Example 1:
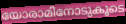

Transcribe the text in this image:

യോരാമിനോടുകൂടെ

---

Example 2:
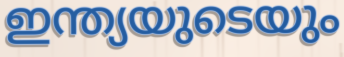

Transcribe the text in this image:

ഇന്ത്യയുടെയും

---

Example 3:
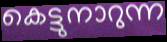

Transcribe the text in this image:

കെട്ടുനാറുന്ന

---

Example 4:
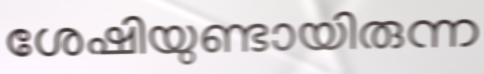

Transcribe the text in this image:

ശേഷിയുണ്ടായിരുന്ന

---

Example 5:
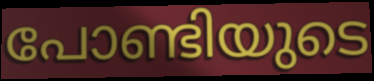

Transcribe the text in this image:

പോണ്ടിയുടെ